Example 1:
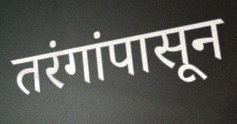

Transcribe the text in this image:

तरंगांपासून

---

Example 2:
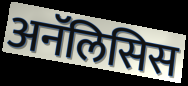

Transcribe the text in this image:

अनॅलिसिस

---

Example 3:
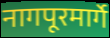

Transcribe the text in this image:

नागपूरमार्गे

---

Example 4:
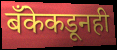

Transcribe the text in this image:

बँकेकडूनही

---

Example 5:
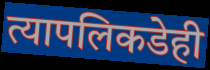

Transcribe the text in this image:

त्यापलिकडेही